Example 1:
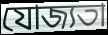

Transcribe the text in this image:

যোজ্যতা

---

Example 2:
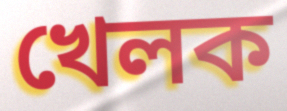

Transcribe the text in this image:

খেলক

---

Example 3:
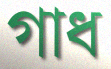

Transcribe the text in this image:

গাধ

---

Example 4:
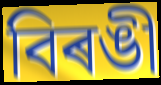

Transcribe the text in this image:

বিৰঙী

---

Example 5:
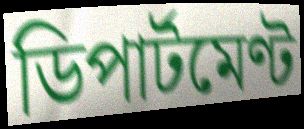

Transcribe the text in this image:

ডিপাৰ্টমেণ্ট